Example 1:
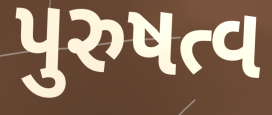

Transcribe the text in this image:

પુરુષત્વ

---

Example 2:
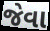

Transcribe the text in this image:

જેવા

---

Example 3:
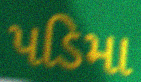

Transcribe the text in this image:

પડિમા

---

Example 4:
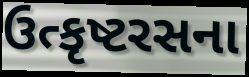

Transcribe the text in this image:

ઉત્કૃષ્ટરસના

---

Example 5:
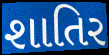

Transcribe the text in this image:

શાતિર